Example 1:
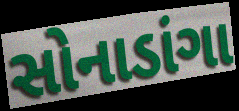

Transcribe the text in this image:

સોનાડાંગા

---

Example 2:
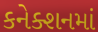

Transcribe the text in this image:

કનેક્શનમાં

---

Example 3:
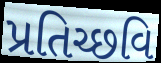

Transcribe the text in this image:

પ્રતિચ્છવિ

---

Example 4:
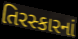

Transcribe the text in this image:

તિરસ્કારનાં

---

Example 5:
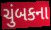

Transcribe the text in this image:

ચુંબકના